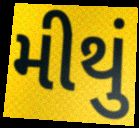
મીથું